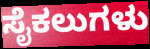
ಸೈಕಲುಗಳು